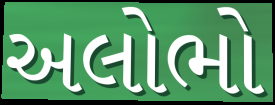
અલોભો